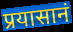
प्रयासानं